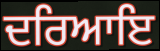
ਦਰਿਆਇ